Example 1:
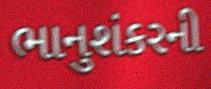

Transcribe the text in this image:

ભાનુશંકરની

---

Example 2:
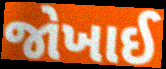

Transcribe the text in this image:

જોખાઈ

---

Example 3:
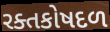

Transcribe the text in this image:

રક્તકોષદળ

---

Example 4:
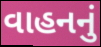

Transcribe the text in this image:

વાહનનું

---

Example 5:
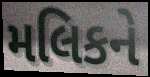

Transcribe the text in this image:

મલિકને